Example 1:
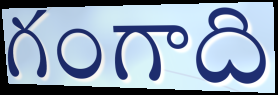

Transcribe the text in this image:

గంగాది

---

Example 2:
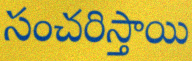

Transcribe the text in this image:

సంచరిస్తాయి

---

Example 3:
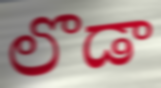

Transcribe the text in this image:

లొడా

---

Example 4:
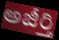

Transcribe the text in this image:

అజీర్తి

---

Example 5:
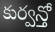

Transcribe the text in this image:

కుర్వన్తో